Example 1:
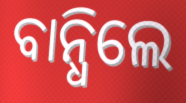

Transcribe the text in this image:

ବାନ୍ଧିଲେ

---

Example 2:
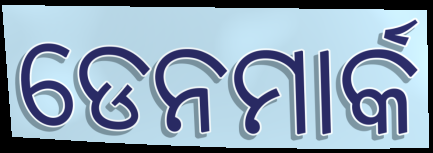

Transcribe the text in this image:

ଡେନମାର୍କ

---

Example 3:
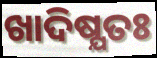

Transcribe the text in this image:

ଖାଦିଷ୍ଯତଃ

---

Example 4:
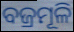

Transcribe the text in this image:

ବଜ୍ରମୂଳି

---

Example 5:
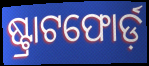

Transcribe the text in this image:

ଷ୍ଟ୍ରାଟଫୋର୍ଡ଼